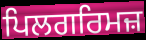
ਪਿਲਗਰਿਮਜ਼